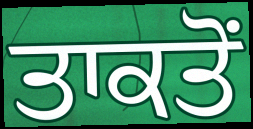
ਤਾਕਤੋਂ